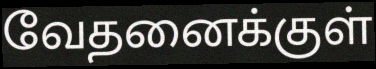
வேதனைக்குள்